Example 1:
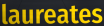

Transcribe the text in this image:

laureates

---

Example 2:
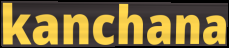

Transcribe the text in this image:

kanchana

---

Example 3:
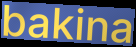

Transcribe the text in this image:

bakina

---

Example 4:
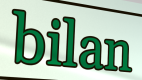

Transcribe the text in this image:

bilan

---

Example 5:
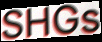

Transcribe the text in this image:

SHGs